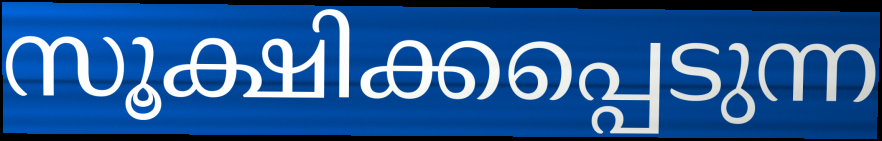
സൂക്ഷിക്കപ്പെടുന്ന